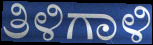
ತಿಳಿಗಾಳಿ